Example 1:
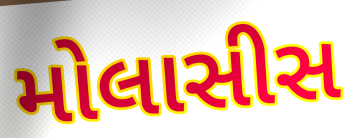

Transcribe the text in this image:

મોલાસીસ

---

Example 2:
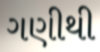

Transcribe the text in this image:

ગણીથી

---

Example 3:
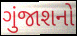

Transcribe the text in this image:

ગુંજાશનો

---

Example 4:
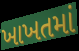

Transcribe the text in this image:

ખાખતમાં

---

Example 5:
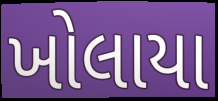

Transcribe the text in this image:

ખોલાયા